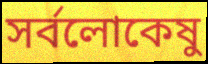
সর্বলোকেষু